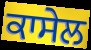
ਕਾਸੇਲ